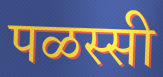
पळस्सी